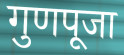
गुणपूजा